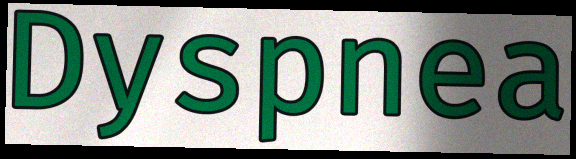
Dyspnea